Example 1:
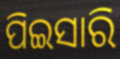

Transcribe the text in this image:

ପିଇସାରି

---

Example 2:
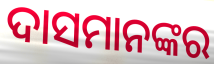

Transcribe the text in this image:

ଦାସମାନଙ୍କର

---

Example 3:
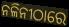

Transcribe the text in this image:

ନଳିନୀଠାରେ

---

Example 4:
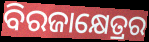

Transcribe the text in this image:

ବିରଜାକ୍ଷେତ୍ରର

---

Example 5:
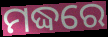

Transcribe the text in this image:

ମଦ୍ଧରେ